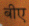
बीए